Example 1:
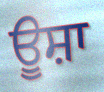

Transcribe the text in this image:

ਊਸ਼ਾ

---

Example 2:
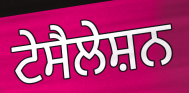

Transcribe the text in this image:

ਟੇਸੈਲੇਸ਼ਨ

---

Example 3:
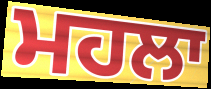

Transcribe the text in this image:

ਮਹਲਾ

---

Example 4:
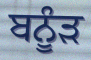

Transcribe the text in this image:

ਬਨੂੰੜ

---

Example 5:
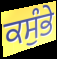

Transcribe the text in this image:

ਕਸੁੰਭੇ